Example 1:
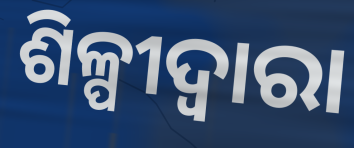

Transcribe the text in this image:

ଶିଳ୍ପୀଦ୍ୱାରା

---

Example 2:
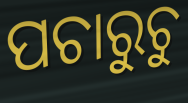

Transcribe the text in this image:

ପଚାରୁଚୁ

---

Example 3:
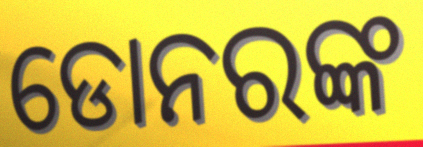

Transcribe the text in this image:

ଡୋନରଙ୍କ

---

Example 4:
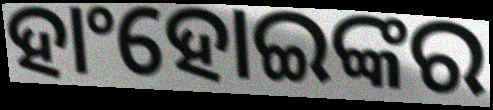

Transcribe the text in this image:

ହାଂହୋଇଙ୍କର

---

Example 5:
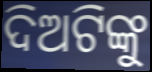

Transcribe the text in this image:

ଦିଅଟିଙ୍କୁ